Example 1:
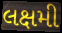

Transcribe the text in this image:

લક્ષમી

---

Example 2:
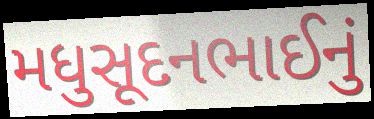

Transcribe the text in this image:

મધુસૂદનભાઈનું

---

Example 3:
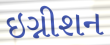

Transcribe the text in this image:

ઇગ્નીશન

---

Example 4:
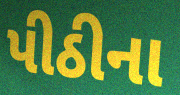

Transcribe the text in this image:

પીઠીના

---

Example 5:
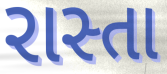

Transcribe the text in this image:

રાસ્તા